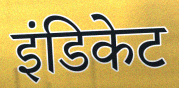
इंडिकेट